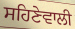
ਸਹਿਣੇਵਾਲੀ